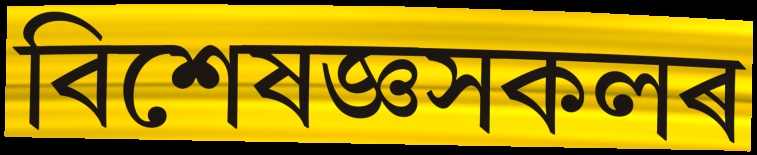
বিশেষজ্ঞসকলৰ